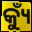
କ୍ୟୁଁ